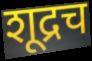
शूद्रच